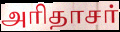
அரிதாசர்